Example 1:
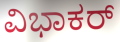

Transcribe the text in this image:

ವಿಭಾಕರ್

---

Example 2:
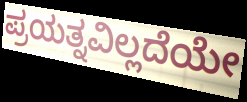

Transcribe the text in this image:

ಪ್ರಯತ್ನವಿಲ್ಲದೆಯೇ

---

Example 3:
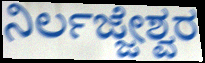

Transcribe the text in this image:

ನಿರ್ಲಜ್ಜೇಶ್ವರ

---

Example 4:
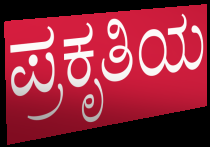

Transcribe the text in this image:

ಪ್ರಕೃತಿಯ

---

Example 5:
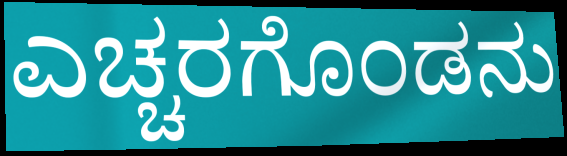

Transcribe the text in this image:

ಎಚ್ಚರಗೊಂಡನು